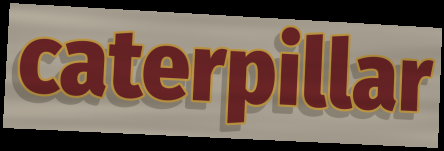
caterpillar